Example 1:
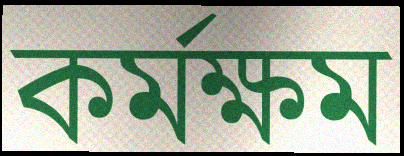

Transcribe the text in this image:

কর্মক্ষম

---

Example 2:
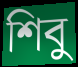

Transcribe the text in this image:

শিবু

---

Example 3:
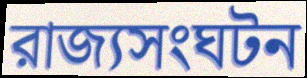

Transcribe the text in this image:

রাজ্যসংঘটন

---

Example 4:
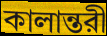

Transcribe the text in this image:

কালান্তরী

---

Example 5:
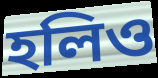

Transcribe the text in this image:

হলিও